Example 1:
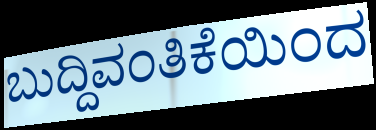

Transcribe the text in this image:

ಬುದ್ದಿವಂತಿಕೆಯಿಂದ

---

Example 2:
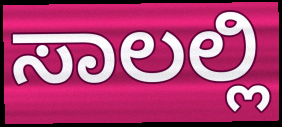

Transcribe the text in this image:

ಸಾಲಲ್ಲಿ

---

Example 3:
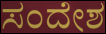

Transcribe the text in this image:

ಸಂದೇಶ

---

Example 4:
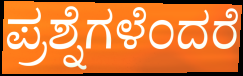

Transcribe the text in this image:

ಪ್ರಶ್ನೆಗಳೆಂದರೆ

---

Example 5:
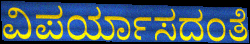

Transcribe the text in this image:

ವಿಪರ್ಯಾಸದಂತೆ